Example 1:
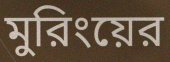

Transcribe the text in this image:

মুরিংয়ের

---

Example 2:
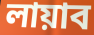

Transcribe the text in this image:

লায়াব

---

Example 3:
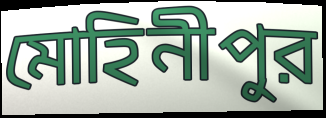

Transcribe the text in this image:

মোহিনীপুর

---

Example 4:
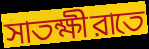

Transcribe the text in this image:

সাতক্ষীরাতে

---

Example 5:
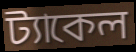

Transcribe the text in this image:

ট্যাকেল